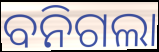
ବନିଗଲା